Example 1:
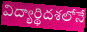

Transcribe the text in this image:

విద్యార్థిదశలోనే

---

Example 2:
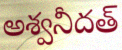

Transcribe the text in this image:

అశ్వనీదత్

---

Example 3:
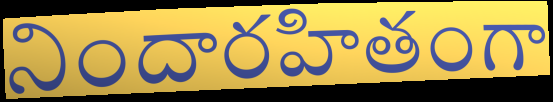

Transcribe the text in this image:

నిందారహితంగా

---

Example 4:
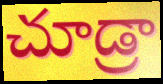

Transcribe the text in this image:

చూడ్రా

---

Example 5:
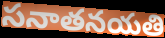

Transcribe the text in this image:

సనాతనయతి